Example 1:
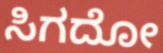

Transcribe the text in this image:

ಸಿಗದೋ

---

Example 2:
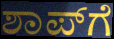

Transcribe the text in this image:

ಶಾಪ್‌ಗೆ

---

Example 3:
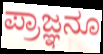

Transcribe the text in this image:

ಪ್ರಾಜ್ಞನೂ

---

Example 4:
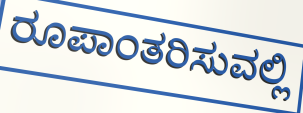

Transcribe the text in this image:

ರೂಪಾಂತರಿಸುವಲ್ಲಿ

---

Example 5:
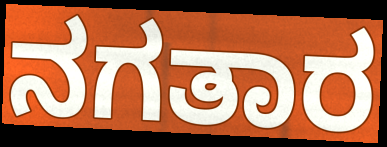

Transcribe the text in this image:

ನಗತಾರ